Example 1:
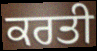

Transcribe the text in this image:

ਕਰਤੀ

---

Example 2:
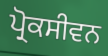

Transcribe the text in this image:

ਪ੍ਰੋਕਸੀਵਨ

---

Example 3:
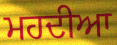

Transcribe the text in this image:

ਮਹਦੀਆ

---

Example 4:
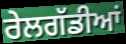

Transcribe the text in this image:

ਰੇਲਗੱਡੀਆਂ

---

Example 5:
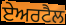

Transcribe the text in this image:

ਏਅਰਟੈਲ